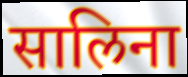
सालिना